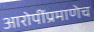
आरोपींप्रमाणेच